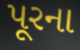
પૂરના